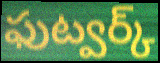
ఫుట్వర్క్